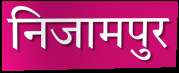
निजामपुर